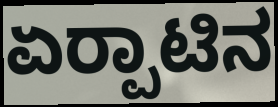
ಏರ‍್ಪಾಟಿನ